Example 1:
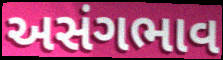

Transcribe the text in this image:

અસંગભાવ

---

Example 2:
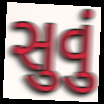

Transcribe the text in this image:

સુવું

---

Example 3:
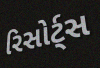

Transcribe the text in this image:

રિસોર્ટ્સ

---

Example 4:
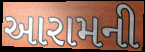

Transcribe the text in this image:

આરામની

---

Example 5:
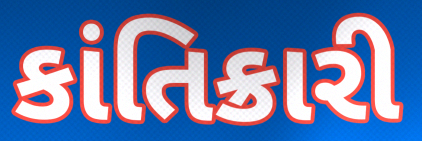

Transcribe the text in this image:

કાંતિક્રારી